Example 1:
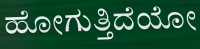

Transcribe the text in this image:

ಹೋಗುತ್ತಿದೆಯೋ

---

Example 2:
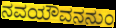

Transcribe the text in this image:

ನವಯೌವನನುಂ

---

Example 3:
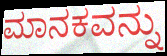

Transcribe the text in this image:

ಮಾನಕವನ್ನು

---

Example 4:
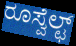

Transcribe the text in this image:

ರೂಸ್ವೆಲ್ಟ್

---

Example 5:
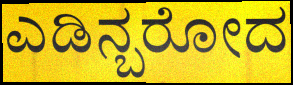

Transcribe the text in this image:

ಎಡಿನ್ಬರೋದ